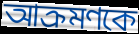
আক্রমণকে